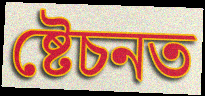
ষ্টেচনত